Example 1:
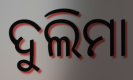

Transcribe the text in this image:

ଦୁଲିମା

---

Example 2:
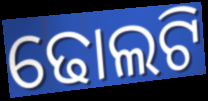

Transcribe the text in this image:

ଢୋଲଟି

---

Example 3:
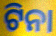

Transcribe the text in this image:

ଟିନା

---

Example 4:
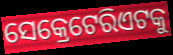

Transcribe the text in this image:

ସେକ୍ରେଟେରିଏଟକୁ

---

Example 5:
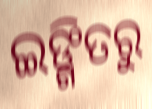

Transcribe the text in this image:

ଇଙ୍ଗିତରୁ